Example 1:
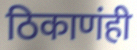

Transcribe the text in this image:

ठिकाणंही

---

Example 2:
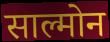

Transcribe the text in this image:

साल्मोन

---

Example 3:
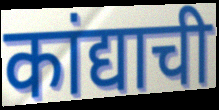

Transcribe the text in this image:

कांद्याची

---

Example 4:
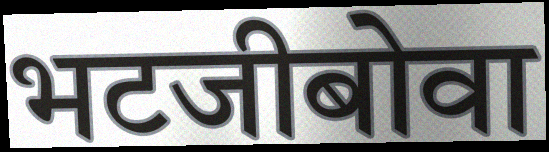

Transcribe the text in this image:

भटजीबोवा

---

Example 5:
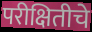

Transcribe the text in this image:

परीक्षितीचे